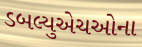
ડબલ્યુએચઓના